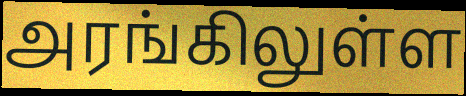
அரங்கிலுள்ள